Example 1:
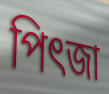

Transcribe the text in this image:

পিৎজা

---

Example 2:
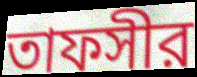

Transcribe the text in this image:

তাফসীর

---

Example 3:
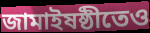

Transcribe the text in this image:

জামাইষষ্ঠীতেও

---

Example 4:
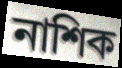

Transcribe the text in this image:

নাশিক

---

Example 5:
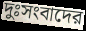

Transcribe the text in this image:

দুঃসংবাদের